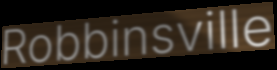
Robbinsville